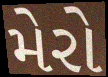
મેરો